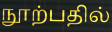
நூற்பதில்